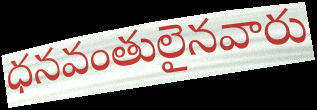
ధనవంతులైనవారు